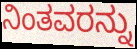
ನಿಂತವರನ್ನು